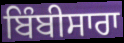
ਬਿੰਬੀਸਾਰਾ